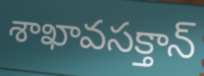
శాఖావసక్తాన్